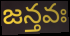
జన్తవః